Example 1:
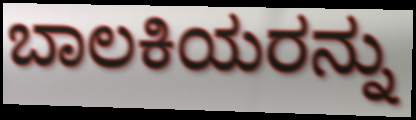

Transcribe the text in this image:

ಬಾಲಕಿಯರನ್ನು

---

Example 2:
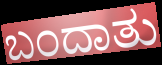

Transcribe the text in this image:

ಬಂದಾತು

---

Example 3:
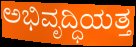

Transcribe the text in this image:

ಅಭಿವೃದ್ಧಿಯತ್ತ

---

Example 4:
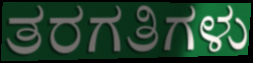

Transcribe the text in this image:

ತರಗತಿಗಳು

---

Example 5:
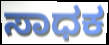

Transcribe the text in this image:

ಸಾಧಕ